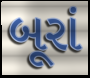
બૂરાં